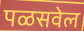
पळसवेल